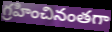
గ్రహించినంతగా